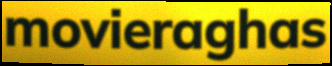
movieraghas